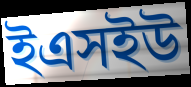
ইএসইউ